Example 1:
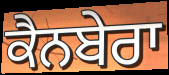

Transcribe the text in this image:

ਕੈਨਬੇਰਾ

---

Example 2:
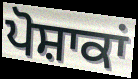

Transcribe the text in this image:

ਪੋਸ਼ਾਕਾਂ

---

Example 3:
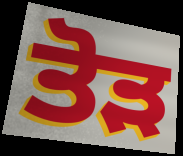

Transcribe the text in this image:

ਤੋੜ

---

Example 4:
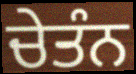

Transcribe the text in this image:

ਚੇਤੰਨ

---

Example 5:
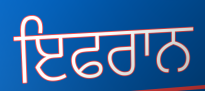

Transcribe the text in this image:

ਇਫਰਾਨ